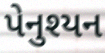
પેનુશ્યન